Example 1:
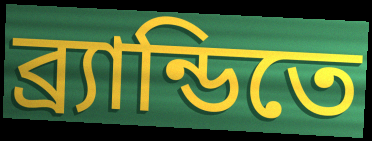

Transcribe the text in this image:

ব্র্যান্ডিতে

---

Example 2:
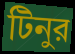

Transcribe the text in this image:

টিনুর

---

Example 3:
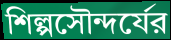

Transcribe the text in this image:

শিল্পসৌন্দর্যের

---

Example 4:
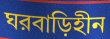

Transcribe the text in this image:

ঘরবাড়িহীন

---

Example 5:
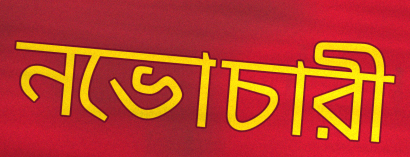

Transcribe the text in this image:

নভোচারী